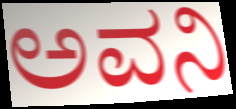
ಅವನಿ